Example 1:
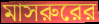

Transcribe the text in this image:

মাসরুরের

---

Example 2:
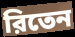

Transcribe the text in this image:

রিতেন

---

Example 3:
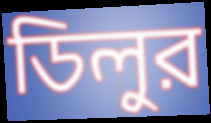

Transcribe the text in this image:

ডিলুর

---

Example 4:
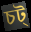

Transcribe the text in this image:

চট্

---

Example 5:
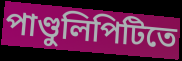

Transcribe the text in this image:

পাণ্ডুলিপিটিতে